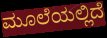
ಮೂಲೆಯಲ್ಲಿದೆ